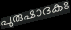
പുരുഷാദകഃ